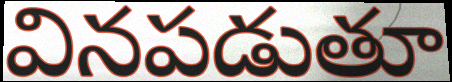
వినపడుతూ